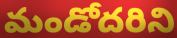
మండోదరిని